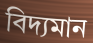
বিদ্যমান